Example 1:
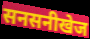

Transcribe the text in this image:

सनसनीखेज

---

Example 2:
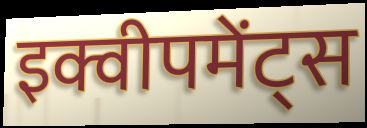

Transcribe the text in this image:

इक्वीपमेंट्स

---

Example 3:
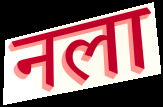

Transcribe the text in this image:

नला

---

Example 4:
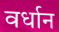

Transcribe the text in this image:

वर्धान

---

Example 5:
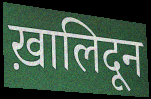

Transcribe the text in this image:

ख़ालिदून